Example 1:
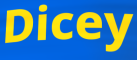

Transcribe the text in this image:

Dicey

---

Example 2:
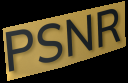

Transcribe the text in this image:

PSNR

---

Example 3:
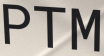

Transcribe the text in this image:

PTM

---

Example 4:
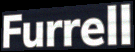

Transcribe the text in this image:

Furrell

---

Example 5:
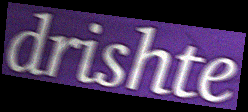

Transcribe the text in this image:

drishte